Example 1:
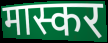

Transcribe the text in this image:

मास्कर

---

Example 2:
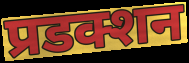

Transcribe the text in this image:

प्रडक्शन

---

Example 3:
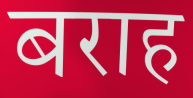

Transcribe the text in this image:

बराह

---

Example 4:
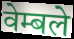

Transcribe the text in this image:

वेम्बले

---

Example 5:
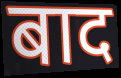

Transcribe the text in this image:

बाद